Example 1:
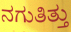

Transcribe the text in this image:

ನಗುತಿತ್ತು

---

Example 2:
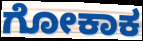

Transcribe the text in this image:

ಗೋಕಾಕ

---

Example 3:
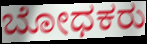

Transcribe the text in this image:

ಬೋಧಕರು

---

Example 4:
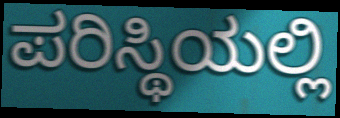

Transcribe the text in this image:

ಪರಿಸ್ಥಿಯಲ್ಲಿ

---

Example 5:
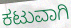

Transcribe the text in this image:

ಕಟುವಾಗಿ